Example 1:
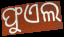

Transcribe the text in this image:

ଫୁଏଲ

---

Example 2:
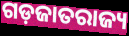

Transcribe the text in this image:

ଗଡ଼ଜାତରାଜ୍ୟ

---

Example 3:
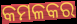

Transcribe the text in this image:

କମଳକର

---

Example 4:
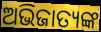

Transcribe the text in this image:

ଅଭିଜାତ୍ୟଙ୍କ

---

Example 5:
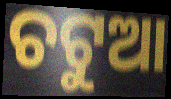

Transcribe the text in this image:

ଚଟୁଆ